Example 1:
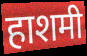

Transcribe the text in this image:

हाशमी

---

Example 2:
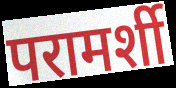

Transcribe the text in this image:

परामर्शी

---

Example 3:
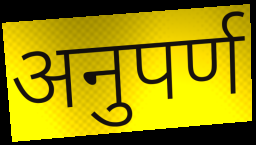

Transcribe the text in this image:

अनुपर्ण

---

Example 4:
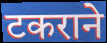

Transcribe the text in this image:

टकराने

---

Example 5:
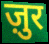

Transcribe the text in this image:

ज़ुर